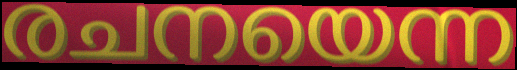
രചനയെന്ന